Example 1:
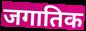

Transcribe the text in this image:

जगातिक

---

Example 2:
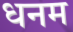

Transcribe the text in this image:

धनम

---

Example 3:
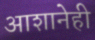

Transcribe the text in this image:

आशानेही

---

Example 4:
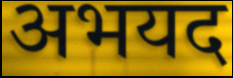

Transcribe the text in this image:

अभयद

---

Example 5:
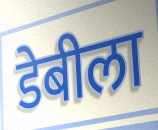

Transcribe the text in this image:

डेबीला